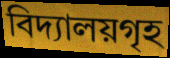
বিদ্যালয়গৃহ